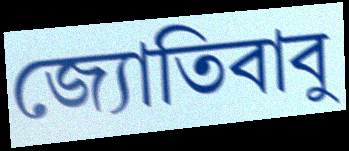
জ্যোতিবাবু